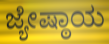
ಜ್ಯೇಷ್ಠಾಯ